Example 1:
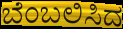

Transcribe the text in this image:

ಬೆಂಬಲಿಸಿದ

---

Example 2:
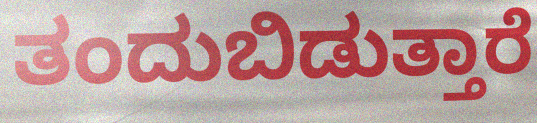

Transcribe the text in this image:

ತಂದುಬಿಡುತ್ತಾರೆ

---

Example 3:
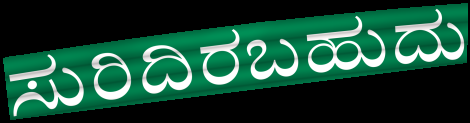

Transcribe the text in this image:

ಸುರಿದಿರಬಹುದು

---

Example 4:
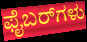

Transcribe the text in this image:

ಫೈಬರ್‌ಗಳು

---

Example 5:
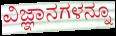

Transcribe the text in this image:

ವಿಜ್ಞಾನಗಳನ್ನೂ